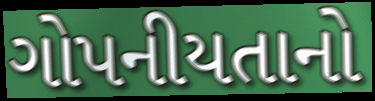
ગોપનીયતાનો